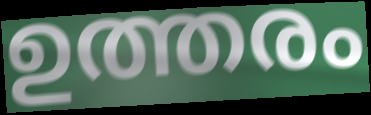
ഉത്തരം